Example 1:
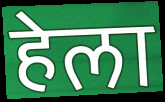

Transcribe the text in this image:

हेला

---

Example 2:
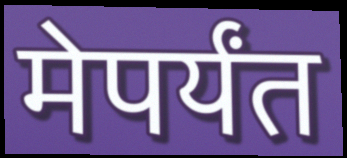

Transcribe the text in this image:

मेपर्यंत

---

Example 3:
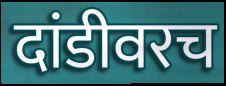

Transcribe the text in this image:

दांडीवरच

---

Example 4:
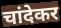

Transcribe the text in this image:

चांदेकर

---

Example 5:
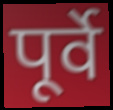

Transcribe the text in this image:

पूर्वे